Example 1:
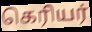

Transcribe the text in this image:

கெரியர்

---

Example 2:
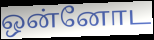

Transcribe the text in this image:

ஒன்னோட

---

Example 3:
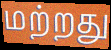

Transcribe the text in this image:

மற்றது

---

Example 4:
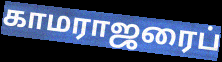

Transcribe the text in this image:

காமராஜரைப்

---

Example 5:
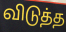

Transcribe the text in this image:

விடுத்த